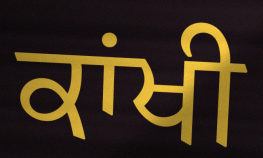
ਕਾਂਖੀ